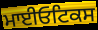
ਮਾਈਓਟਿਕਸ